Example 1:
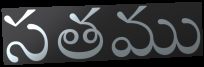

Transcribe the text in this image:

సతము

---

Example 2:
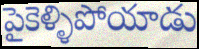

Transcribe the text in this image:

పైకెళ్ళిపోయాడు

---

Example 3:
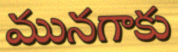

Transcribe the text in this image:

మునగాకు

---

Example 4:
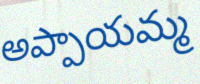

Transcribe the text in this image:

అప్పాయమ్మ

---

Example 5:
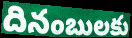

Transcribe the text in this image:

దినంబులకు